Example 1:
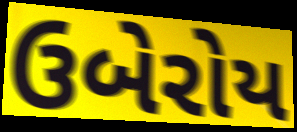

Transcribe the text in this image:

ઉબેરોય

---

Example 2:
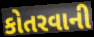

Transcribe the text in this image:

કોતરવાની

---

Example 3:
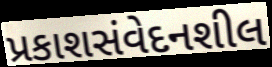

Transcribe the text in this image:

પ્રકાશસંવેદનશીલ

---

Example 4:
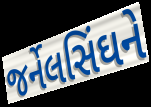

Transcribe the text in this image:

જર્નેલસિંઘને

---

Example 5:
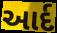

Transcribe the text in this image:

આર્દ